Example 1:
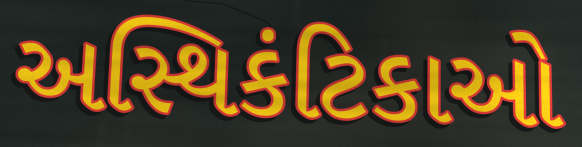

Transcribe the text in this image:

અસ્થિકંટિકાઓ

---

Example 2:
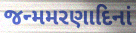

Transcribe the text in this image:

જન્મમરણાદિનાં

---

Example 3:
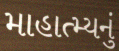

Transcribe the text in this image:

માહાત્મ્યનું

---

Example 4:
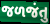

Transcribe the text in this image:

જળજંતુ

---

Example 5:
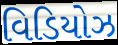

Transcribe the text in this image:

વિડિયોઝ